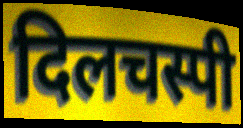
दिलचस्पी